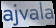
ajvala